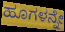
ಹೂಗಳನ್ನೇ